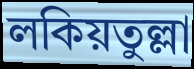
লকিয়তুল্লা